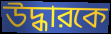
উদ্ধারকে